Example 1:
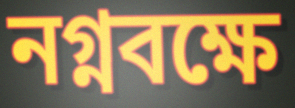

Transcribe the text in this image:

নগ্নবক্ষে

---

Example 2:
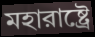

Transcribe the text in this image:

মহারাষ্ট্রে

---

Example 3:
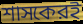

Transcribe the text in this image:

শাসকেরই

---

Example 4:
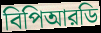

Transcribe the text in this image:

বিপিআরডি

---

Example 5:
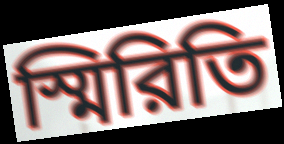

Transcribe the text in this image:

স্মিরিতি